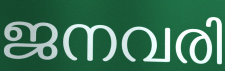
ജനവരി